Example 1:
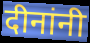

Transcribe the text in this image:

दीनांनी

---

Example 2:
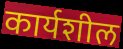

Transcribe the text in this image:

कार्यशील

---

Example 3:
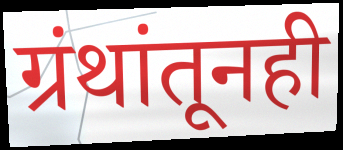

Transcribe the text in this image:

ग्रंथांतूनही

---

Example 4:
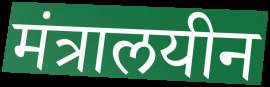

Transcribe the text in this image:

मंत्रालयीन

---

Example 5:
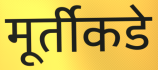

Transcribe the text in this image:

मूर्तीकडे